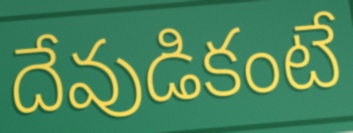
దేవుడికంటే